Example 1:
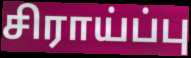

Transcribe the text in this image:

சிராய்ப்பு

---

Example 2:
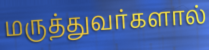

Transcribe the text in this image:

மருத்துவர்களால்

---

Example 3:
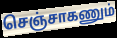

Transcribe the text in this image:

செஞ்சாகணும்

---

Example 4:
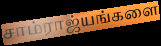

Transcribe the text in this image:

சாம்ராஜ்யங்களை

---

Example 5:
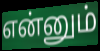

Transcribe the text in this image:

என்னும்